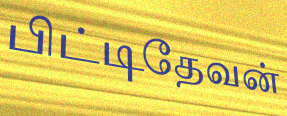
பிட்டிதேவன்